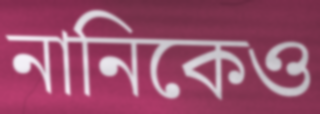
নানিকেও